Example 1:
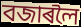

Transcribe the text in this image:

বজাৰলৈ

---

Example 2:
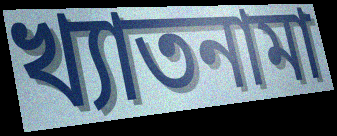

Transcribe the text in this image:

খ্যাতনামা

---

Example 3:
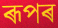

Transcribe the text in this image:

ৰূপৰ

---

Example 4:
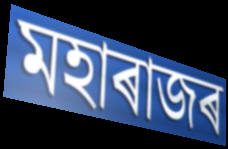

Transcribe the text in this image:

মহাৰাজৰ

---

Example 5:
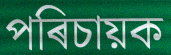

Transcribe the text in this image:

পৰিচায়ক